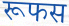
रूफस